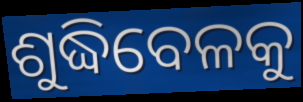
ଶୁଦ୍ଧିବେଳକୁ